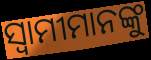
ସ୍ବାମୀମାନଙ୍କୁ